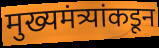
मुख्यमंत्र्यांकडून